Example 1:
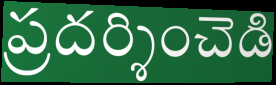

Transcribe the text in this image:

ప్రదర్శించెడి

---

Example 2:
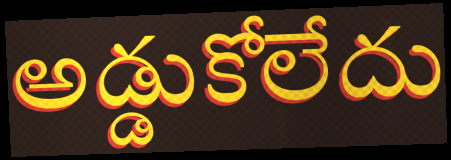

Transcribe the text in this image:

అడ్డుకోలేదు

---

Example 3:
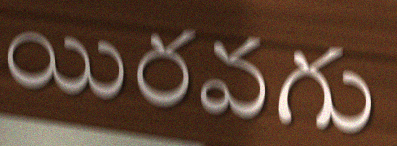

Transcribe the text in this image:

యిరవగు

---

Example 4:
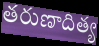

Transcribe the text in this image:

తరుణాదిత్య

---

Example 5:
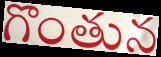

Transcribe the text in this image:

గొంతున